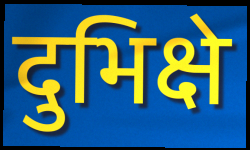
दुभिक्षे